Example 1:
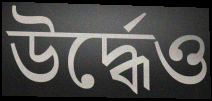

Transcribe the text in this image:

উর্দ্ধেও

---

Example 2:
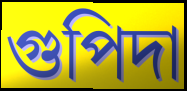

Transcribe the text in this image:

গুপিদা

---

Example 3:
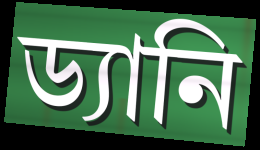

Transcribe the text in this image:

ড্যানি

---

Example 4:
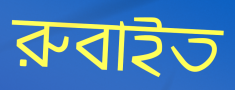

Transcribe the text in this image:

রুবাইত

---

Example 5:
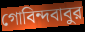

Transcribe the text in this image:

গোবিন্দবাবুর